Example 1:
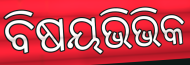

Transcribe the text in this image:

ବିଷୟଭିଭିକ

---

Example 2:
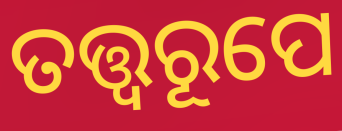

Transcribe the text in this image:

ତତ୍ତ୍ୱରୂପେ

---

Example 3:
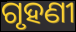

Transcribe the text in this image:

ଗୃହଣୀ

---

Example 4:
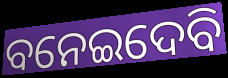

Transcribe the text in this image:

ବନେଇଦେବି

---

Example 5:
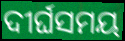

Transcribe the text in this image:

ଦୀର୍ଘସମୟ